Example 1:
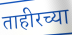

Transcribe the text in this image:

ताहीरच्या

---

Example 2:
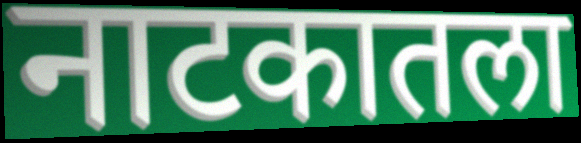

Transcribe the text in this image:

नाटकातला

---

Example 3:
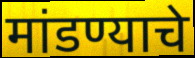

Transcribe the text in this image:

मांडण्याचे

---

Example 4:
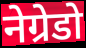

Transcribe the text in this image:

नेग्रेडो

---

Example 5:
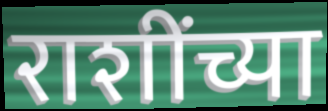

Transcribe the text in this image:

राशींच्या